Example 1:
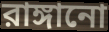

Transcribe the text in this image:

রাঙ্গানো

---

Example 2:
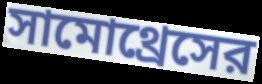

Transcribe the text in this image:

সামোথ্রেসের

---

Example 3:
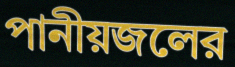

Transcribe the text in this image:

পানীয়জলের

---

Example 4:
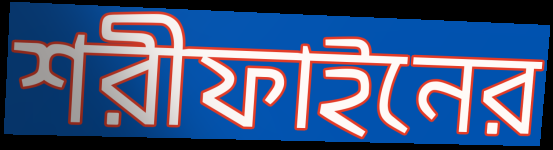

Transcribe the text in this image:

শরীফাইনের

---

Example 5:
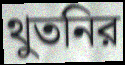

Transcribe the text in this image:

থুতনির